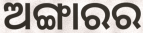
ଅଙ୍ଗାରର